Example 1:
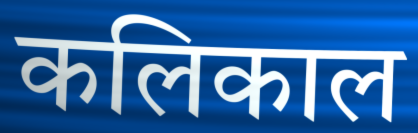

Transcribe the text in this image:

कलिकाल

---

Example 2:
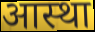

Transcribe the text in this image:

आस्था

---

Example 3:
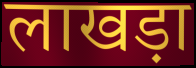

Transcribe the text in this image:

लाखड़ा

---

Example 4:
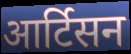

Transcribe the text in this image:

आर्टिसन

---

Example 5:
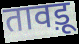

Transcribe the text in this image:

तावड़ू